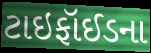
ટાઇફૉઈડના